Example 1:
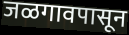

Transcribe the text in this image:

जळगावपासून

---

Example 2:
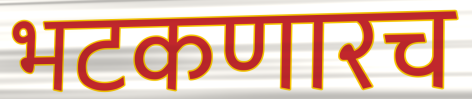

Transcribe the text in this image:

भटकणारच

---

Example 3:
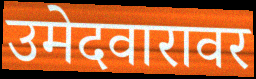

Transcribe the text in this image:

उमेदवारावर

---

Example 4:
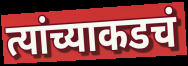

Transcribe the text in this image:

त्यांच्याकडचं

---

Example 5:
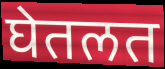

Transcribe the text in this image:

घेतलत